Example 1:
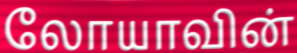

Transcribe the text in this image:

லோயாவின்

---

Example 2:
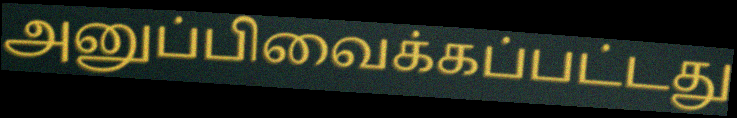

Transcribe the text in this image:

அனுப்பிவைக்கப்பட்டது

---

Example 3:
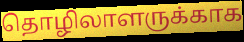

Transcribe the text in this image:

தொழிலாளருக்காக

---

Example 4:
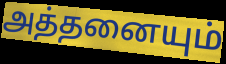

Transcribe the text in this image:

அத்தனையும்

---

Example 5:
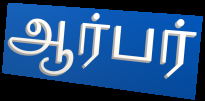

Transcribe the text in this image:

ஆர்பர்